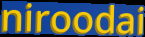
niroodai